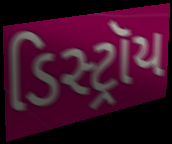
ડિસ્ટ્રૉય